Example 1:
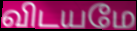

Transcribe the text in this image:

விடயமே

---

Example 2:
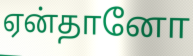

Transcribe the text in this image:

ஏன்தானோ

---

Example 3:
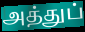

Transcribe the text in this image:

அத்துப்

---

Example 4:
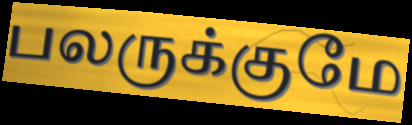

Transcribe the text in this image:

பலருக்குமே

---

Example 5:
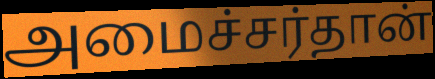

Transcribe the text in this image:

அமைச்சர்தான்